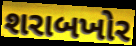
શરાબખોર